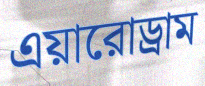
এয়ারোড্রাম